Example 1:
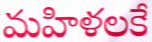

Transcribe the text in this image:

మహిళలకే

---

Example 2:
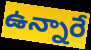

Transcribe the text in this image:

ఉన్నారే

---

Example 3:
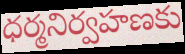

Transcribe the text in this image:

ధర్మనిర్వహణకు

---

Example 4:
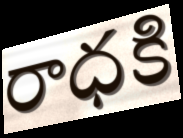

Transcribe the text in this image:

రాధకి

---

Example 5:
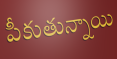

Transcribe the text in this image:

పీకుతున్నాయి